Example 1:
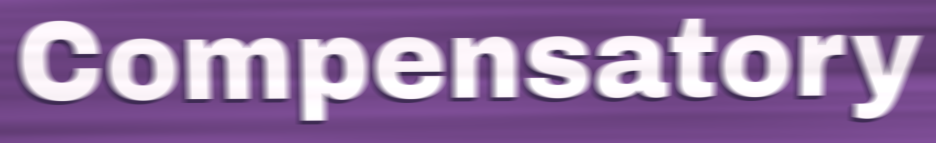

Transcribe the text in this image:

Compensatory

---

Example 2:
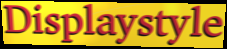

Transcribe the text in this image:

Displaystyle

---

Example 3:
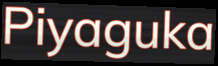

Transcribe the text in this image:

Piyaguka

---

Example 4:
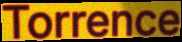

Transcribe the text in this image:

Torrence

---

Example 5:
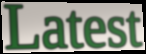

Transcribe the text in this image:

Latest